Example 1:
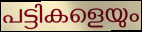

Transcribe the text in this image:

പട്ടികളെയും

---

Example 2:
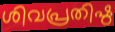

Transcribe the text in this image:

ശിവപ്രതിഷ്ഠ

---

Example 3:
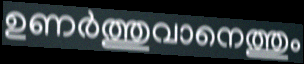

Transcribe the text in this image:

ഉണർത്തുവാനെത്തും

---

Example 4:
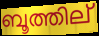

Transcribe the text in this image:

ബൂത്തില്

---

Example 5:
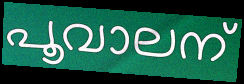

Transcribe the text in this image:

പൂവാലന്